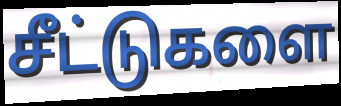
சீட்டுகளை